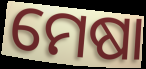
ମେଷା